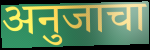
अनुजाचा